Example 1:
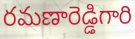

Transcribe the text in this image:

రమణారెడ్డిగారి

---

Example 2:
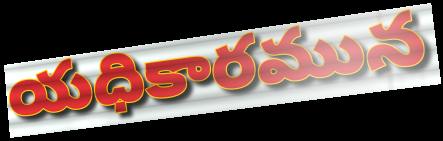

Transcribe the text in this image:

యధికారమున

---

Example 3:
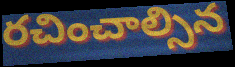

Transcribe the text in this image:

రచించాల్సిన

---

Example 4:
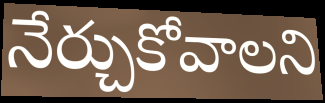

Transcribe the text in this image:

నేర్చుకోవాలని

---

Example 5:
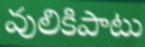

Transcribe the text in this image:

వులికిపాటు